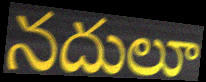
నదులూ